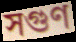
সগুণ